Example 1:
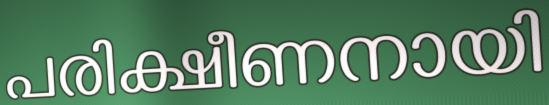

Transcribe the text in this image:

പരിക്ഷീണനായി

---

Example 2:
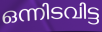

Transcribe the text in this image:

ഒന്നിടവിട്ട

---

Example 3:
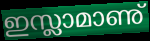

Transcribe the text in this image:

ഇസ്ലാമാണു്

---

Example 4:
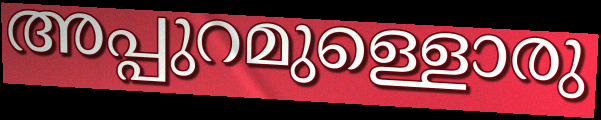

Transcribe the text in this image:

അപ്പുറമുള്ളൊരു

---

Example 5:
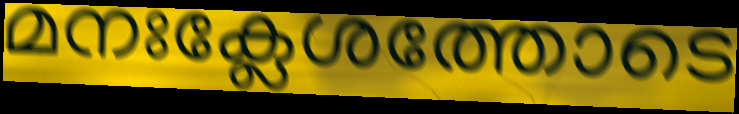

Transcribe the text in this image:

മനഃക്ലേശത്തോടെ